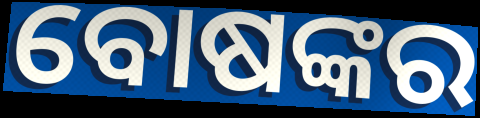
ବୋଷଙ୍କର